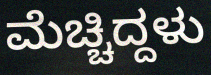
ಮೆಚ್ಚಿದ್ದಳು